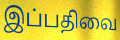
இப்பதிவை